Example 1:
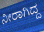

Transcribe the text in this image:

ನೀರಾಗಿದ್ದ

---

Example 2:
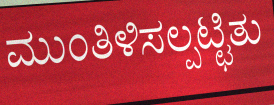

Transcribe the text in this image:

ಮುಂತಿಳಿಸಲ್ಪಟ್ಟಿತು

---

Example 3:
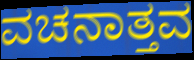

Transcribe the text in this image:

ವಚನಾತ್ತವ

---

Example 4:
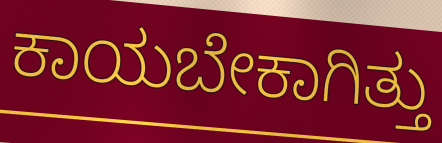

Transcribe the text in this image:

ಕಾಯಬೇಕಾಗಿತ್ತು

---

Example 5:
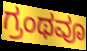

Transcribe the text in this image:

ಗ್ರಂಥವೂ